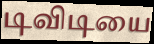
டிவிடியை